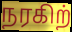
நரகிற்